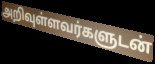
அறிவுள்ளவர்களுடன்